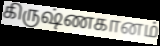
கிருஷ்ணகானம்